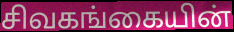
சிவகங்கையின்